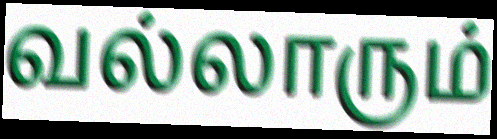
வல்லாரும்